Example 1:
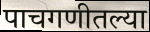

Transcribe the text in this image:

पाचगणीतल्या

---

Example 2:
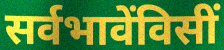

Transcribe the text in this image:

सर्वभावेंविसीं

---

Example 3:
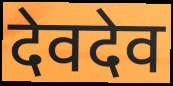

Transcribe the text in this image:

देवदेव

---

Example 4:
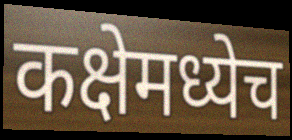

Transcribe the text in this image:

कक्षेमध्येच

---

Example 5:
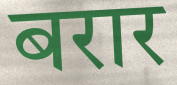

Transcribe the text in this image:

बरार